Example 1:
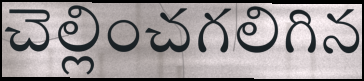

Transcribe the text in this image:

చెల్లించగలిగిన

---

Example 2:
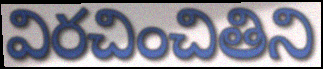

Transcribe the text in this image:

విరచించితిని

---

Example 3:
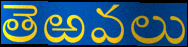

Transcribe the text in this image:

తెఱవలు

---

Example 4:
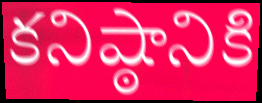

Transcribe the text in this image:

కనిష్ఠానికి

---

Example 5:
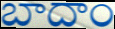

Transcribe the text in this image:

బాదాం